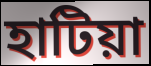
হাটিয়া